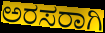
ಅರಸರಾಗಿ